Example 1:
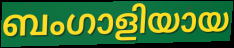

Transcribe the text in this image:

ബംഗാളിയായ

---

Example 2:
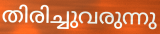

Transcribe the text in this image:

തിരിച്ചുവരുന്നു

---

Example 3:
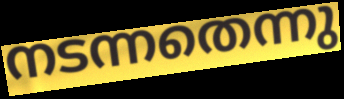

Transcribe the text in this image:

നടന്നതെന്നു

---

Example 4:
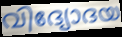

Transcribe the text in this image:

വിദ്യോദയ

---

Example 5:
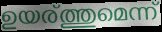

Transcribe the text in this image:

ഉയര്ത്തുമെന്ന്